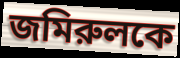
জমিরুলকে